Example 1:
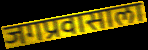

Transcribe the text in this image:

जगप्रवासाला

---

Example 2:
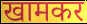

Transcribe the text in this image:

खामकर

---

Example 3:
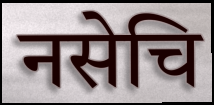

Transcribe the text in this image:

नसेचि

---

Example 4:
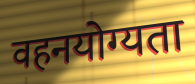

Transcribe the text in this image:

वहनयोग्यता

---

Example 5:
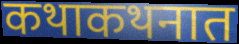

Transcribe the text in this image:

कथाकथनात